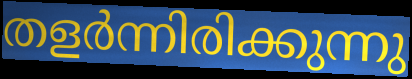
തളർന്നിരിക്കുന്നു